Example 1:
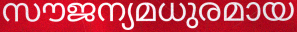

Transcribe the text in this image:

സൗജന്യമധുരമായ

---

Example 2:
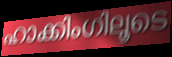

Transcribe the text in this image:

ഹാക്കിംഗിലൂടെ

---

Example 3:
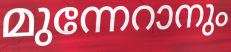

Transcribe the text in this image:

മുന്നേറാനും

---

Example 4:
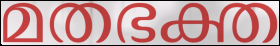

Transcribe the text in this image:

മതഭക്ത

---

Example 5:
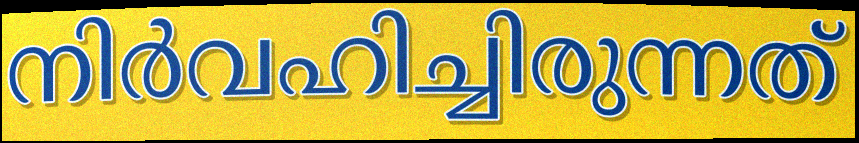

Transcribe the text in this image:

നിർവഹിച്ചിരുന്നത്